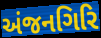
અંજનગિરિ